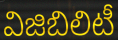
విజిబిలిటీ